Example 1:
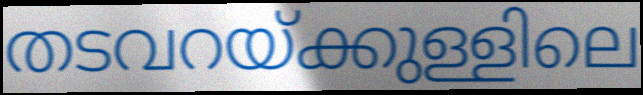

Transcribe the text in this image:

തടവറയ്ക്കുള്ളിലെ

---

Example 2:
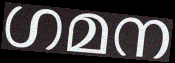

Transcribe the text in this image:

ഗമന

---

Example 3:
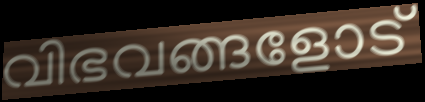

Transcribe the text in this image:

വിഭവങ്ങളോട്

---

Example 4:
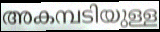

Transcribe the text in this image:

അകമ്പടിയുള്ള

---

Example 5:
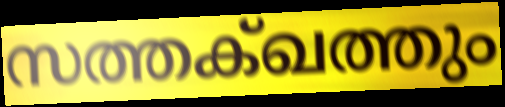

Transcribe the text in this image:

സത്തക്ഖത്തും